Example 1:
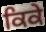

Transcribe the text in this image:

ਕਿਕੇ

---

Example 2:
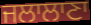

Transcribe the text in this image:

ਜਲਾਲਾਣਾ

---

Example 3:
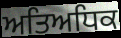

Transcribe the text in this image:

ਅਤਿਅਧਿਕ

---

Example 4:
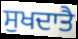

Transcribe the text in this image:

ਸੁਖਦਾਤੈ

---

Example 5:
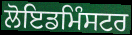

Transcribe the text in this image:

ਲੋਇਡਮਿੰਸਟਰ